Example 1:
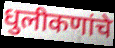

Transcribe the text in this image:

धुलीकणांचे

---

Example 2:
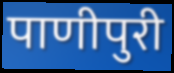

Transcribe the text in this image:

पाणीपुरी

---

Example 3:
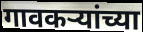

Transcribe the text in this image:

गावकर्‍यांच्या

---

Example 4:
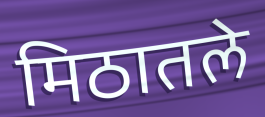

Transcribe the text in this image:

मिठातले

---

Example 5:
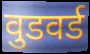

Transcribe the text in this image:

वुडवर्ड